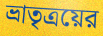
ভ্রাতৃত্রয়ের